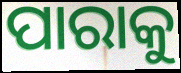
ପାରାକୁ